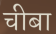
चीबा